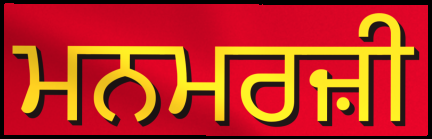
ਮਨਮਰਜ਼ੀ